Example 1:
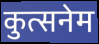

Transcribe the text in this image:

कुत्सनेम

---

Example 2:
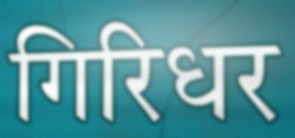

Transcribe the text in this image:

गिरिधर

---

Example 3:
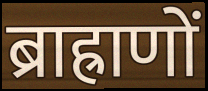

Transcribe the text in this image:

ब्राह्राणों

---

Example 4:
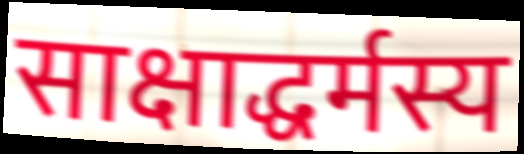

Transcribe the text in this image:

साक्षाद्धर्मस्य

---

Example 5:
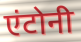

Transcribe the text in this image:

एंटोनी